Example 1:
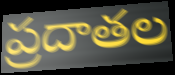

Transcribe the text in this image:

ప్రదాతల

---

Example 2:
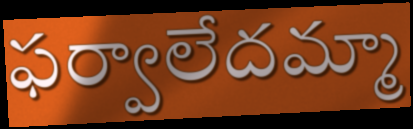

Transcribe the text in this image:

ఫర్వాలేదమ్మా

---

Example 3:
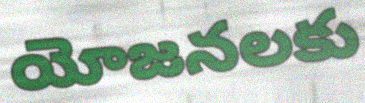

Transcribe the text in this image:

యోజనలకు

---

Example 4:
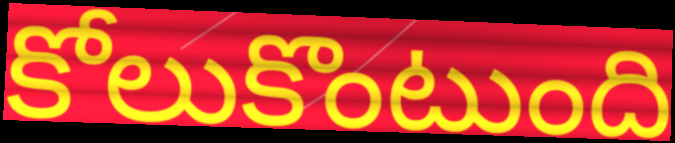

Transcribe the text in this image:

కోలుకొంటుంది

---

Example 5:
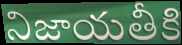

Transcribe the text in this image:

నిజాయతీకి